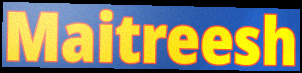
Maitreesh